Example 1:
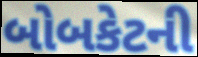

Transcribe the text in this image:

બોબકેટની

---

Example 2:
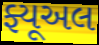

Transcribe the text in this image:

ફ્યૂઅલ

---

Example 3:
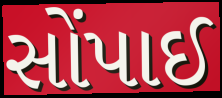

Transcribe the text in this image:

સોંપાઈ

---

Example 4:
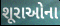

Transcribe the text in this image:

શૂરાઓના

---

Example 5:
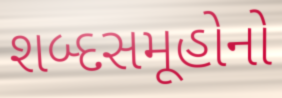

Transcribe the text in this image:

શબ્દસમૂહોનો